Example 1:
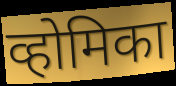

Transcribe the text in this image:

व्होमिका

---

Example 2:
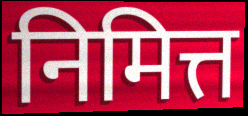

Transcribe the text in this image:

निमित्त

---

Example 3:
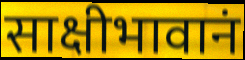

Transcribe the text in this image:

साक्षीभावानं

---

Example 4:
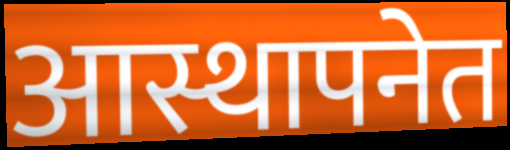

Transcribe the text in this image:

आस्थापनेत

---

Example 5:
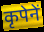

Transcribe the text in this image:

कृपेनें